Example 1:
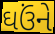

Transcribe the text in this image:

ઘઉંને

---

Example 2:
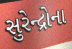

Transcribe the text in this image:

સુરેન્દ્રોના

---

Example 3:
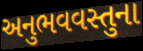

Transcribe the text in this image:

અનુભવવસ્તુના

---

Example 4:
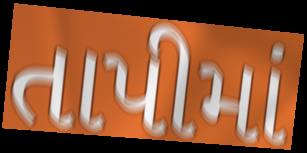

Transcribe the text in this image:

તાપીમાં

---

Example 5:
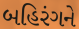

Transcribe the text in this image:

બહિરંગને